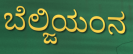
ಬೆಲ್ಜಿಯಂನ